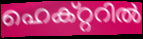
ഹെക്റ്ററിൽ